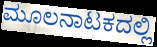
ಮೂಲನಾಟಕದಲ್ಲಿ